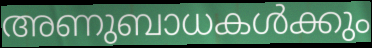
അണുബാധകൾക്കും